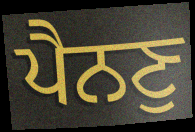
ਪੈਨਣੁ